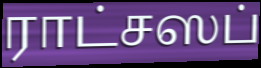
ராட்சஸப்